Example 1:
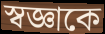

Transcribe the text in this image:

স্বজ্ঞাকে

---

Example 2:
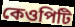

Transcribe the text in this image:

কেওপিটি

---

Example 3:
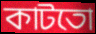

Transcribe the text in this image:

কাটতো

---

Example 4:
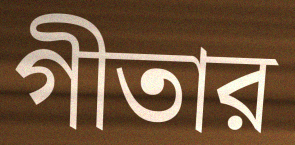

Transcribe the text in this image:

গীতার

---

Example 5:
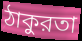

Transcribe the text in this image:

ঠাকুরতা